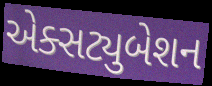
એક્સટ્યુબેશન